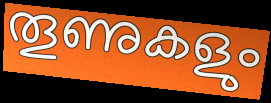
തൂണുകളും